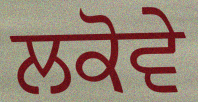
ਲਕੋਵੇ